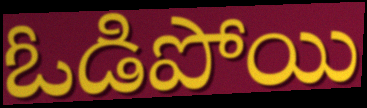
ఓడిపోయి